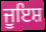
ਜੂਇਸ਼